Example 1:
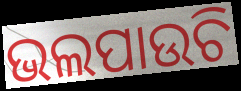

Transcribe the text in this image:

ଭଲପାଉଚି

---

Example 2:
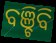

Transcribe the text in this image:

ବଞ୍ଚିବି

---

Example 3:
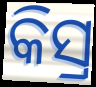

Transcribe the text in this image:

କିସ୍ର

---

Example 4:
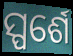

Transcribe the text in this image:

ସ୍ପର୍ଶେ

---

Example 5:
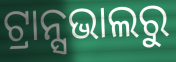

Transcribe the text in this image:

ଟ୍ରାନ୍ସଭାଲରୁ